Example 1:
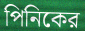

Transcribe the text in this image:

পিনিকের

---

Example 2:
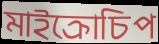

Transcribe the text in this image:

মাইক্রোচিপ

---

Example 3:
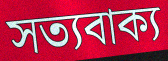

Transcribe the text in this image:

সত্যবাক্য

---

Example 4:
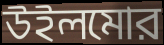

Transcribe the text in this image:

উইলমোর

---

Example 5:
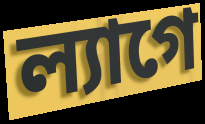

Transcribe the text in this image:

ল্যাগে